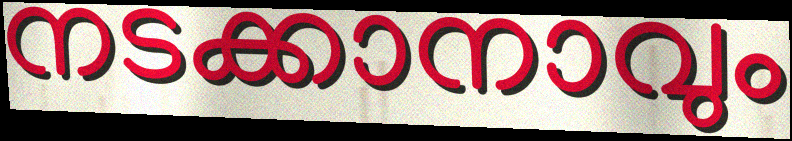
നടക്കാനാവും